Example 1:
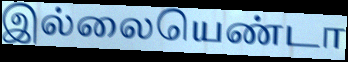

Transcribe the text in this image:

இல்லையெண்டா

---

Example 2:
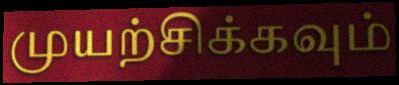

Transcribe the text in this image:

முயற்சிக்கவும்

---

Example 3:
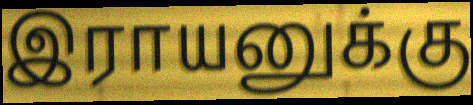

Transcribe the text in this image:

இராயனுக்கு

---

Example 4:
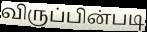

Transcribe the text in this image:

விருப்பின்படி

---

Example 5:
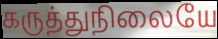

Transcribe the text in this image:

கருத்துநிலையே